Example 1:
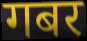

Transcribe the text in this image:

गबर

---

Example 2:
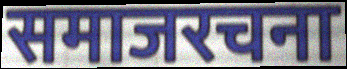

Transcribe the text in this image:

समाजरचना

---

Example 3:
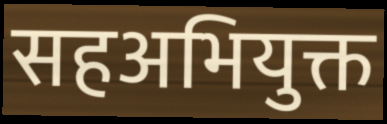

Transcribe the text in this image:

सहअभियुक्त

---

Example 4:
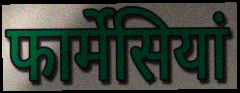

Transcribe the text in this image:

फार्मेसियां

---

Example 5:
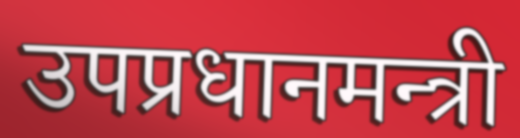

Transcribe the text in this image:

उपप्रधानमन्त्री